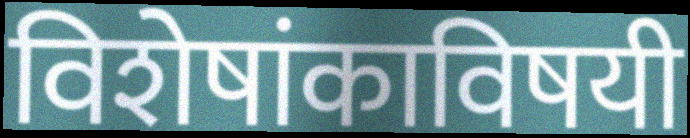
विशेषांकाविषयी